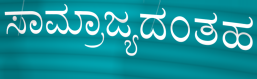
ಸಾಮ್ರಾಜ್ಯದಂತಹ